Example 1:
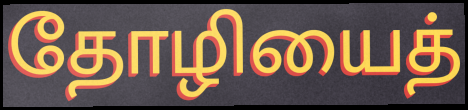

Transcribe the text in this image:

தோழியைத்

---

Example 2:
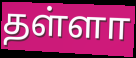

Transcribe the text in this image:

தள்ளா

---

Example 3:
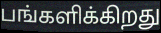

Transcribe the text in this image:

பங்களிக்கிறது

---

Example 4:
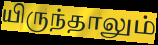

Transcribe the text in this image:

யிருந்தாலும்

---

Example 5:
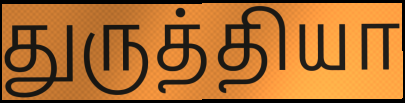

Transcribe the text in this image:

துருத்தியா